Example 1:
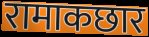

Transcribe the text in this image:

रामाकछार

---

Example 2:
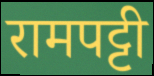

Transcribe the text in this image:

रामपट्टी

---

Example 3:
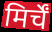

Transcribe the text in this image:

मिर्चें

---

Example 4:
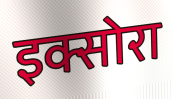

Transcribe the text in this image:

इक्सोरा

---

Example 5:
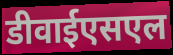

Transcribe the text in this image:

डीवाईएसएल